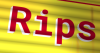
Rips